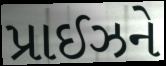
પ્રાઈઝને